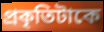
প্রকৃতিটাকে